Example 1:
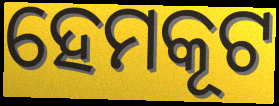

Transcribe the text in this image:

ହେମକୂଟ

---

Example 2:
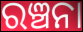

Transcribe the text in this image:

ରଞ୍ଚନା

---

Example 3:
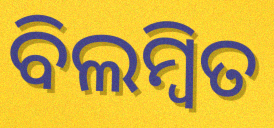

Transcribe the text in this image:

ବିଲମ୍ୱିତ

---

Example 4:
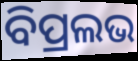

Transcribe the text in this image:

ବିପ୍ରଲଭ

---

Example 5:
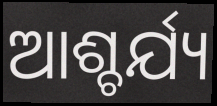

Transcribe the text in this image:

ଆଶ୍ଚର୍ଯ୍ୟ